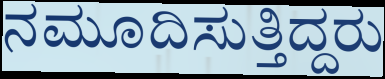
ನಮೂದಿಸುತ್ತಿದ್ದರು